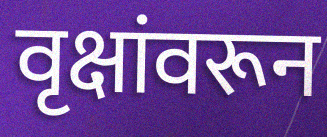
वृक्षांवरून